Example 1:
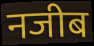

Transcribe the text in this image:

नजीब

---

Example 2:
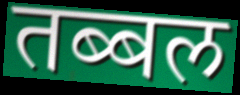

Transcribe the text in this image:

तब्बल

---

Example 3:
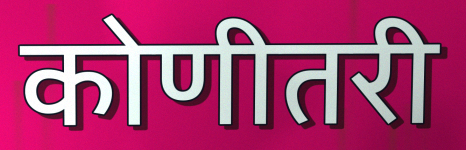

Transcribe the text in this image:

कोणीतरी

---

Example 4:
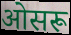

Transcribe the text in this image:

ओसरू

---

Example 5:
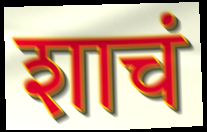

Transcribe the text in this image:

शाचं